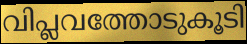
വിപ്ലവത്തോടുകൂടി